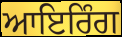
ਆਇਰਿੰਗ